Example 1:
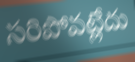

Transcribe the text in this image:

సరిపోవట్లేదు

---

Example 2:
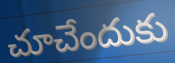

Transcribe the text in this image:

చూచేందుకు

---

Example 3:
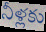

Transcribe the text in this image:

నీళ్లకు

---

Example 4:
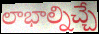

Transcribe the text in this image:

లాభాల్నిచ్చే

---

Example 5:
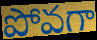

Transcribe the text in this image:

పోవగా